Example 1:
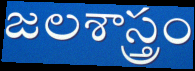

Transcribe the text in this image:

జలశాస్త్రం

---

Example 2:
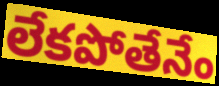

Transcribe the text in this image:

లేకపోతేనేం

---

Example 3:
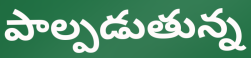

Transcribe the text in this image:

పాల్పడుతున్న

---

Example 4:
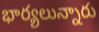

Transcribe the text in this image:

భార్యలున్నారు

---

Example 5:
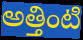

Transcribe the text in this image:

అత్తింటి